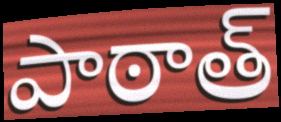
పాఠాత్